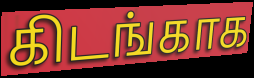
கிடங்காக